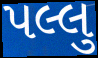
પલ્લુ